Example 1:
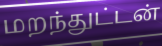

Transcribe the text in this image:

மறந்துட்டன்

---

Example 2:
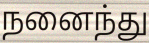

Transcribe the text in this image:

நனைந்து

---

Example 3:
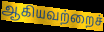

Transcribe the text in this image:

ஆகியவற்றைச்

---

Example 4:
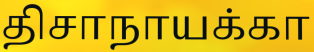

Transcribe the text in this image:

திசாநாயக்கா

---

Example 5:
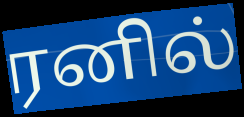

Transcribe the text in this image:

ரனில்